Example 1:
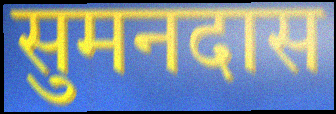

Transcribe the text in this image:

सुमनदास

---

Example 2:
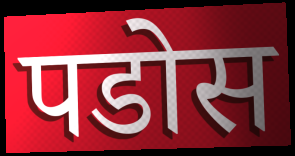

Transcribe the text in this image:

पडोस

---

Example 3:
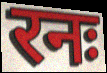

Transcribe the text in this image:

रनः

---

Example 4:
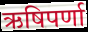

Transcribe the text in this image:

ऋषिपर्णा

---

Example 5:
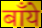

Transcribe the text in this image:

बाँये